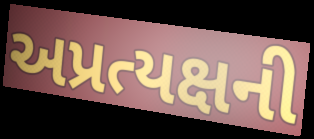
અપ્રત્યક્ષની